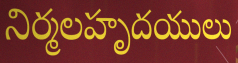
నిర్మలహృదయులు